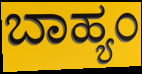
ಬಾಹ್ಯಂ